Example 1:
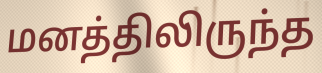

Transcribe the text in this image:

மனத்திலிருந்த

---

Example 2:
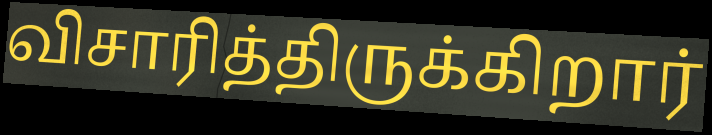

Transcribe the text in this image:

விசாரித்திருக்கிறார்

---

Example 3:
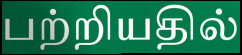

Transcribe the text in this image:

பற்றியதில்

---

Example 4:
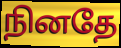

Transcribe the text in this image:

நினதே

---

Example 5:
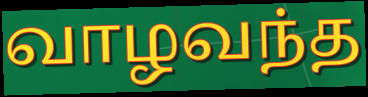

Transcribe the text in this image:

வாழவந்த